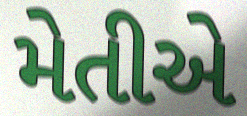
મેતીએ